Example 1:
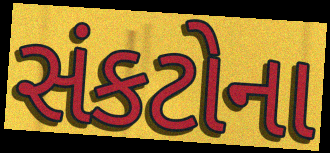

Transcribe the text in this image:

સંકટોના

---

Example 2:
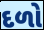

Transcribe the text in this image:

દળો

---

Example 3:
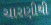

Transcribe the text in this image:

ચારણીથી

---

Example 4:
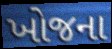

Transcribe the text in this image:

ખોજના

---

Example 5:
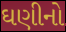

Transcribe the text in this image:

ઘણીનો